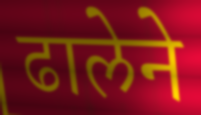
ढालेने